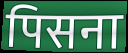
पिसना